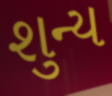
શુન્ય